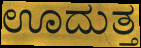
ಊದುತ್ತ